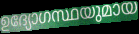
ഉദ്യോഗസ്ഥയുമായ